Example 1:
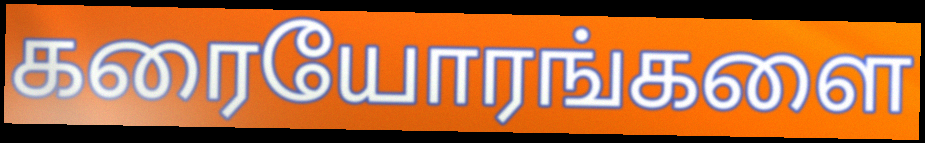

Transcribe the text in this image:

கரையோரங்களை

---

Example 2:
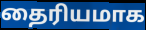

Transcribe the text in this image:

தைரியமாக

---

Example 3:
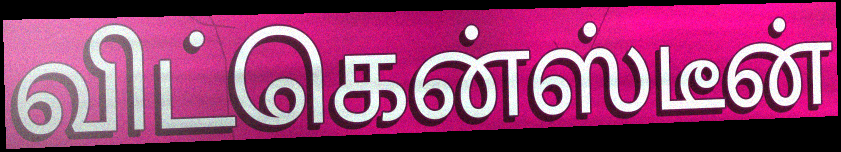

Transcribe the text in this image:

விட்கென்ஸ்டீன்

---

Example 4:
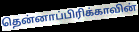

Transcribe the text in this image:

தென்னாப்பிரிக்காவின்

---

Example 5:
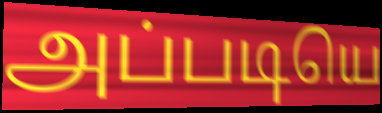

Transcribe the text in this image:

அப்படியெ